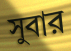
সুবার